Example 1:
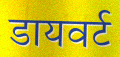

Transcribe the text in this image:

डायवर्ट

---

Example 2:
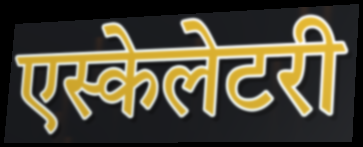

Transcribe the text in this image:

एस्केलेटरी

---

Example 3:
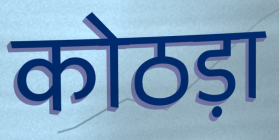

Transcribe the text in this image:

कोठड़ा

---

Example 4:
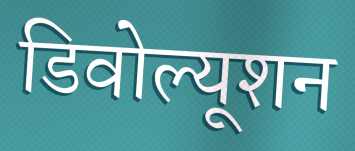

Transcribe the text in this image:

डिवोल्यूशन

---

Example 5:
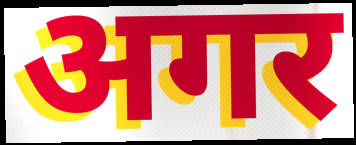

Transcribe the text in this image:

अगर